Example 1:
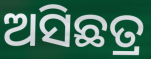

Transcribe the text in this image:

ଅସିଛତ୍ର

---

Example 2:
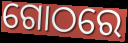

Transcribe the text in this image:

ଗୋଠରେ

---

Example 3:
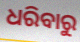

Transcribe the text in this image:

ଧରିବାରୁ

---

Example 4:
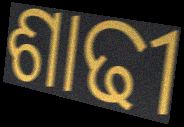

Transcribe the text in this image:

ଶାଢୀ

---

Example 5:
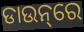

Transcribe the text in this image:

ଡାଉନ୍‌ରେ